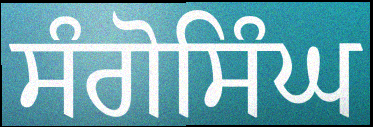
ਸੰਗੋਸਿੰਘ